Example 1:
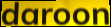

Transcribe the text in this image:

daroon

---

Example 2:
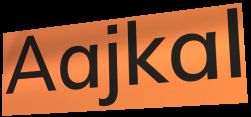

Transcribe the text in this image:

Aajkal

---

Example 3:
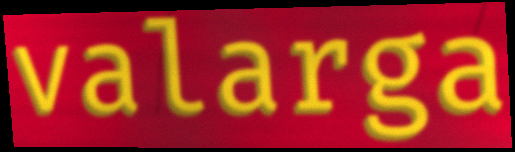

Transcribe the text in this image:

valarga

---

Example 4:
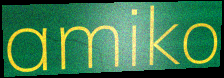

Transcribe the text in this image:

amiko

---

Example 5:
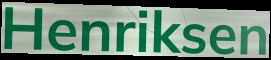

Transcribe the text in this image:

Henriksen